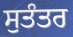
ਸੁਤੰਤਰ